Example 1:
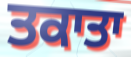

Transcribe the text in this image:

ਤਕਾਤਾ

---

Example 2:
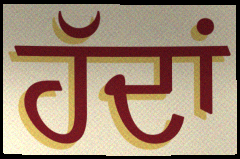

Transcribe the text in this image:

ਹੱਦਾਂ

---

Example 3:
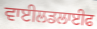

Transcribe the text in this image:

ਵਾਈਲਡਲਾਈਫ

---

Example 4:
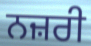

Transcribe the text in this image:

ਨਜ਼ਰੀ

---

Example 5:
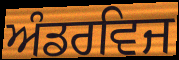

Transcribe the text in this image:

ਅੰਡਰਵਿਜ